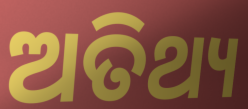
ଅତିଥ୍ୟ